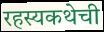
रहस्यकथेची